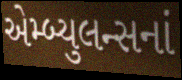
એમ્બ્યુલન્સનાં